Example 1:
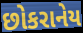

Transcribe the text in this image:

છોકરાનેય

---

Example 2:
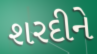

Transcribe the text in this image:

શરદીને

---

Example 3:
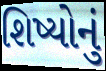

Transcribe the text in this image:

શિષ્યોનું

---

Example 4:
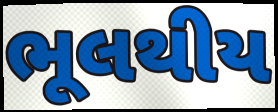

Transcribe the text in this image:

ભૂલથીય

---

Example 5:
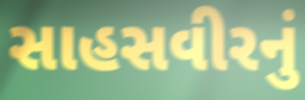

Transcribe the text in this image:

સાહસવીરનું